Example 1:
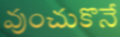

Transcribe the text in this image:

వుంచుకొనే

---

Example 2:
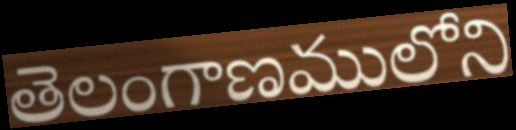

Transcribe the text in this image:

తెలంగాణములోని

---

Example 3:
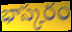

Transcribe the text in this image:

భాస్కరం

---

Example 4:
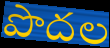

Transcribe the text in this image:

పొదల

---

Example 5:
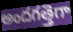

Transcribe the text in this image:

అందగత్తెగా